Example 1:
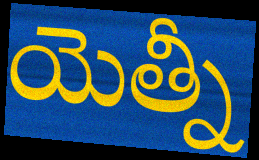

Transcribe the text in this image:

యెత్నీ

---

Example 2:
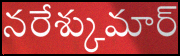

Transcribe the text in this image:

నరేశ్కుమార్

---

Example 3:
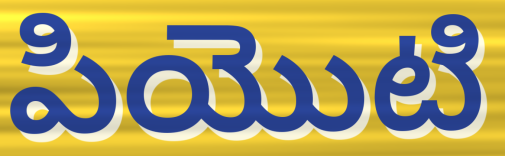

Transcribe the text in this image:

పియొటి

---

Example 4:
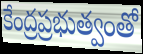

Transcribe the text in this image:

కేంద్రప్రభుత్వంతో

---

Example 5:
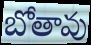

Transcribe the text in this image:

బోతావు